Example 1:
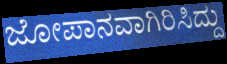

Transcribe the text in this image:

ಜೋಪಾನವಾಗಿರಿಸಿದ್ದು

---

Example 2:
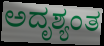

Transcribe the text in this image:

ಅದೃಶ್ಯಂತ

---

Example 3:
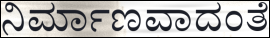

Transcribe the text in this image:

ನಿರ್ಮಾಣವಾದಂತೆ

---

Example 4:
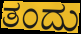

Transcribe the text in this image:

ತಂದು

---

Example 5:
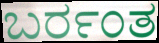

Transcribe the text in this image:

ಬರ್ರಂತ